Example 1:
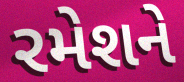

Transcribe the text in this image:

રમેશને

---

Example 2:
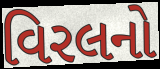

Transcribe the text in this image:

વિરલનો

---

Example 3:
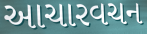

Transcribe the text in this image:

આચારવચન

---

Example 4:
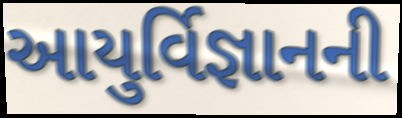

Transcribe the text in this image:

આયુર્વિજ્ઞાનની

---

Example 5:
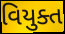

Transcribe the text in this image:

વિયુક્ત